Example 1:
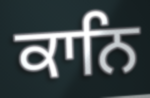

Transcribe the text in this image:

ਕਾਨਿ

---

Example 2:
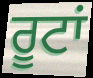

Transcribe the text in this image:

ਰੂਟਾਂ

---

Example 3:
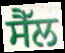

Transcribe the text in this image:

ਸੈੱਲ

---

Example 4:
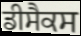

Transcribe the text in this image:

ਡੀਸੈਕਸ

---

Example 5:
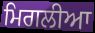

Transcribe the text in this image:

ਮਿਗਲੀਆ